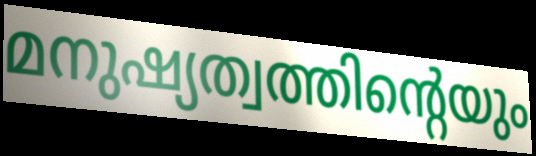
മനുഷ്യത്വത്തിന്റെയും